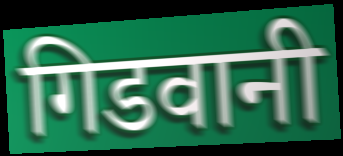
गिडवानी